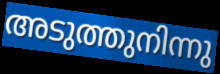
അടുത്തുനിന്നു